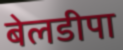
बेलडीपा